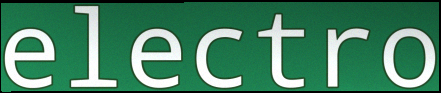
electro